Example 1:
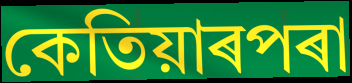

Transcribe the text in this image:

কেতিয়াৰপৰা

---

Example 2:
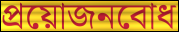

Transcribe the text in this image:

প্ৰয়োজনবোধ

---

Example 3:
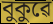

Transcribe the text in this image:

বুকুৱে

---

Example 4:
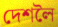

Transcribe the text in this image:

দেশলৈ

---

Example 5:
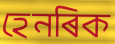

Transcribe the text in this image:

হেনৰিক